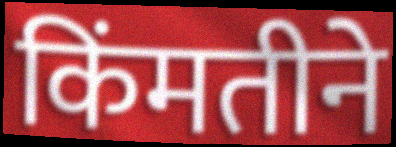
किंमतीने